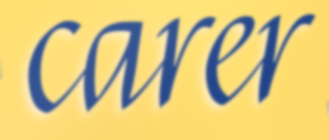
carer